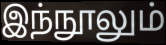
இந்நூலும்